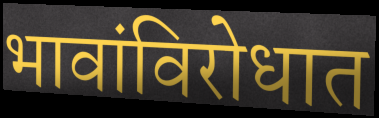
भावांविरोधात